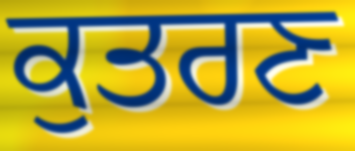
ਕੁਤਰਣ